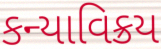
કન્યાવિક્રય